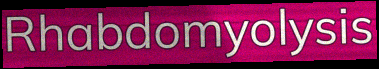
Rhabdomyolysis